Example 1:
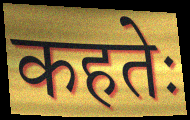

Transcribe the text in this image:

कहतेः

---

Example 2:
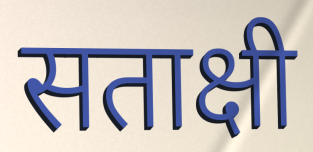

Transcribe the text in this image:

सताक्षी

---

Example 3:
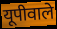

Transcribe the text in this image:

यूपीवाले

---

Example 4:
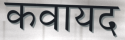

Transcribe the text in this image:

कवायद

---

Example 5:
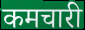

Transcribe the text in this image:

कमचारी